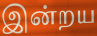
இன்றய